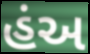
હંઅ